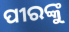
ପୀରଙ୍କୁ